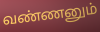
வண்ணனும்